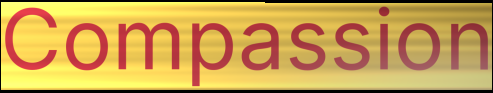
Compassion